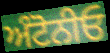
ਅੰਟੋਨੀਓ